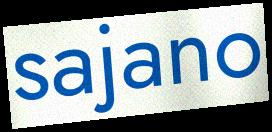
sajano